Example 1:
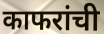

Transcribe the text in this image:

काफरांची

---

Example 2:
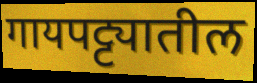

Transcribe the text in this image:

गायपट्ट्यातील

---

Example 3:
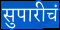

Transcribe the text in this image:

सुपारीचं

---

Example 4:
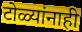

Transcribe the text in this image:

टोळ्यांनाही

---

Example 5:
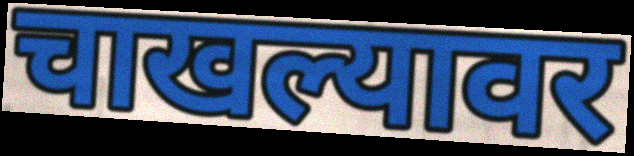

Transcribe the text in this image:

चाखल्यावर